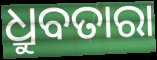
ଧ୍ରୁବତାରା